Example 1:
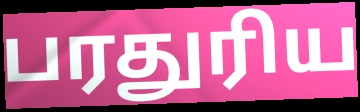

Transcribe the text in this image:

பரதுரிய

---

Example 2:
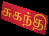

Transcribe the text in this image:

சுகந்தி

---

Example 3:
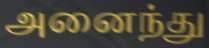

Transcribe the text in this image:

அனைந்து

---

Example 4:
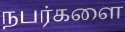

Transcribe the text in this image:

நபர்களை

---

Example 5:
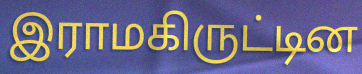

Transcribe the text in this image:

இராமகிருட்டின